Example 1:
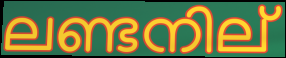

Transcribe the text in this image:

ലണ്ടനില്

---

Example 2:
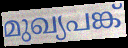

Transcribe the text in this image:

മുഖ്യപങ്ക്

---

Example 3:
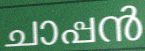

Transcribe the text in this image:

ചാപ്പൻ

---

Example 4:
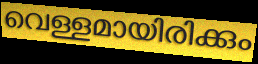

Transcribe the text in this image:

വെള്ളമായിരിക്കും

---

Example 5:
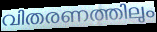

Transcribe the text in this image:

വിതരണത്തിലും